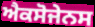
ਐਕਸੋਜੇਨਸ